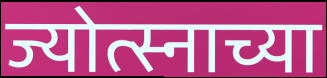
ज्योत्स्नाच्या